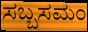
ಸಬ್ಬಸಮಂ